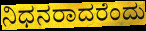
ನಿಧನರಾದರೆಂದು